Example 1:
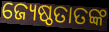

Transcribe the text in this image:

ଜ୍ୟେଷ୍ଠତାତଙ୍କ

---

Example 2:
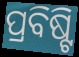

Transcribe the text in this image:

ପ୍ରବିଷ୍ଟି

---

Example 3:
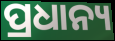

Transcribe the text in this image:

ପ୍ରଧାନ୍ୟ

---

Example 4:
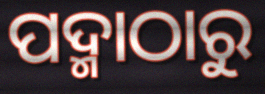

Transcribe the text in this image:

ପଦ୍ମାଠାରୁ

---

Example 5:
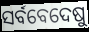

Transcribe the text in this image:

ସର୍ବବେଦେଷୁ